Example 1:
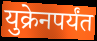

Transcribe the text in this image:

युक्रेनपर्यंत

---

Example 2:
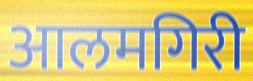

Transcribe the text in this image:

आलमगिरी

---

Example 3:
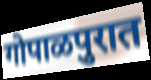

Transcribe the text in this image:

गोपाळपुरात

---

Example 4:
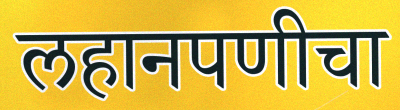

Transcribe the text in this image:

लहानपणीचा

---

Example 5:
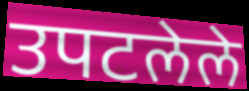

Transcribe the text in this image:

उपटलेले